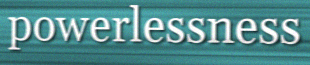
powerlessness